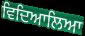
ਵਿਦਿਆਲਿਆ